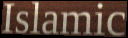
Islamic